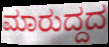
ಮಾರುದ್ದದ